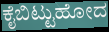
ಕೈಬಿಟ್ಟುಹೋದ